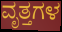
ವೃತ್ತಗಳ